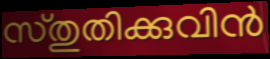
സ്തുതിക്കുവിൻ